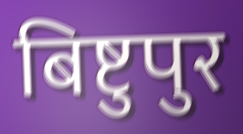
बिष्टुपुर